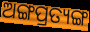
ଅଙ୍ଗପ୍ରତ୍ୟଙ୍ଗ